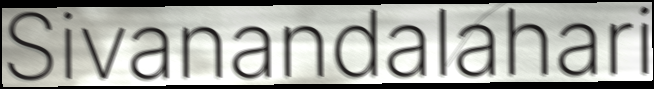
Sivanandalahari